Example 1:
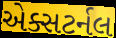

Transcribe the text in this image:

એક્સટર્નલ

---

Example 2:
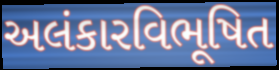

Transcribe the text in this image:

અલંકારવિભૂષિત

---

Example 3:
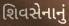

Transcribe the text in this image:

શિવસેનાનું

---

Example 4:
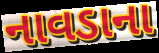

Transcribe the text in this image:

નાવડાના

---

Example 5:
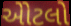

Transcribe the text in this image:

એોટલો